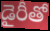
డైరీతో